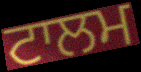
ਟਾਲਮ